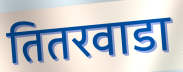
तितरवाडा